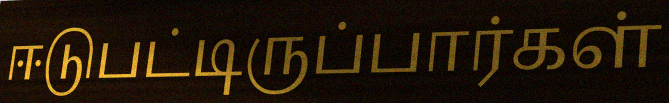
ஈடுபட்டிருப்பார்கள்